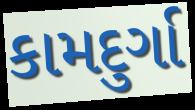
કામદુર્ગા